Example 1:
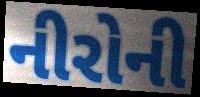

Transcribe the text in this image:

નીરોની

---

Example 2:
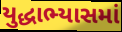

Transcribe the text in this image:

યુદ્ધાભ્યાસમાં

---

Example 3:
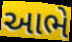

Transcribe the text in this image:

આભે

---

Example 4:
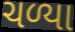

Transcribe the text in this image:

ચળ્યા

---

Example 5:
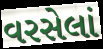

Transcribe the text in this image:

વરસેલાં